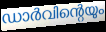
ഡാർവിന്റെയും